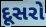
દૂસરો